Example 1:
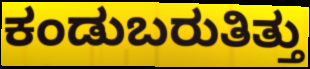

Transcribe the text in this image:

ಕಂಡುಬರುತಿತ್ತು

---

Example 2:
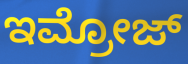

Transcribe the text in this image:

ಇಮ್ರೋಜ್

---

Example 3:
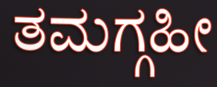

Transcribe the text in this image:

ತಮಗ್ಗಹೀ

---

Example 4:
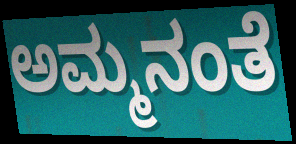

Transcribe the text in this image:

ಅಮ್ಮನಂತೆ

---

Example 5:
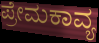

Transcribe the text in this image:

ಪ್ರೇಮಕಾವ್ಯ